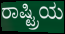
ರಾಷ್ಟ್ರಿಯ